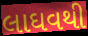
લાઘવથી